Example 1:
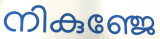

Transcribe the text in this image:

നികുഞ്ജേ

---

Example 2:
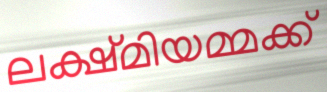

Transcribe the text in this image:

ലക്ഷ്മിയമ്മക്ക്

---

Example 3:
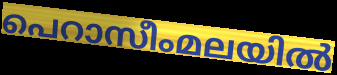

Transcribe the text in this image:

പെറാസീംമലയിൽ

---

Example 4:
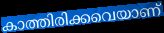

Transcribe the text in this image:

കാത്തിരിക്കവെയാണ്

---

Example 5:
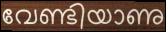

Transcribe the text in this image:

വേണ്ടിയാണു